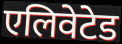
एलिवेटेड